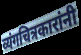
व्यंगचित्रकारांनी